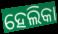
ହେଲିକା